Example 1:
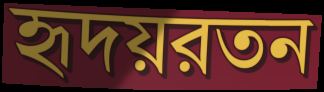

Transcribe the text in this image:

হৃদয়রতন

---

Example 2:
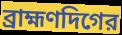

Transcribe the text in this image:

ব্রাহ্মণদিগের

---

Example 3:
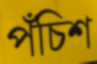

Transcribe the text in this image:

পঁচিশ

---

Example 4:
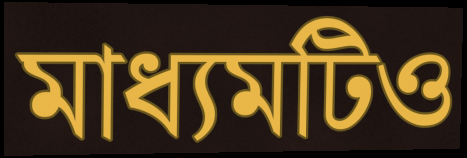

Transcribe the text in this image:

মাধ্যমটিও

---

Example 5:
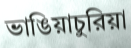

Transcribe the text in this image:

ভাঙিয়াচুরিয়া